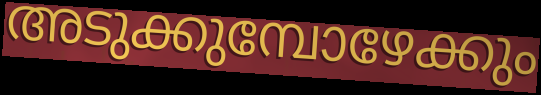
അടുക്കുമ്പോഴേക്കും